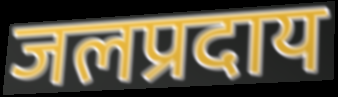
जलप्रदाय